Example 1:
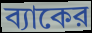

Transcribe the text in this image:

ব্যাকের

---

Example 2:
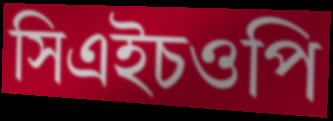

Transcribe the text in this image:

সিএইচওপি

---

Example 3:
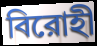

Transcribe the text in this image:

বিরোহী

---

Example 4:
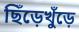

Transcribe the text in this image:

ছিঁড়েখুঁড়ে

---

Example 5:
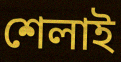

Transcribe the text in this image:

শেলাই